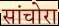
सांचोरा